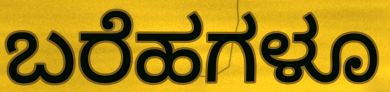
ಬರೆಹಗಳೂ